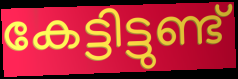
കേട്ടിട്ടുണ്ട്